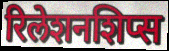
रिलेशनशिप्स